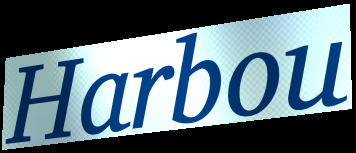
Harbou